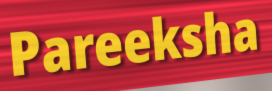
Pareeksha